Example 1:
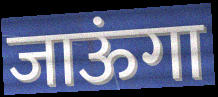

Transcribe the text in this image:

जाऊंगा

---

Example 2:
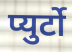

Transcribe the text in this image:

प्युर्टो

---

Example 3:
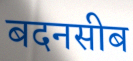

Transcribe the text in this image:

बदनसीब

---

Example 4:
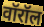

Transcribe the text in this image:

वॉरॉल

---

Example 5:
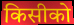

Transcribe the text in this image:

किसीको